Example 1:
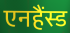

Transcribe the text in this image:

एनहैंस्ड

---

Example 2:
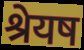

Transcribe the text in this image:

श्रेयष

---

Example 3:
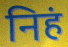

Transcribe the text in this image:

निहं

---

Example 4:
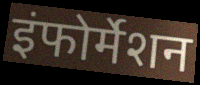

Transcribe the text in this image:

इंफोर्मेशन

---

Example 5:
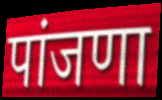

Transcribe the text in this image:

पांजणा